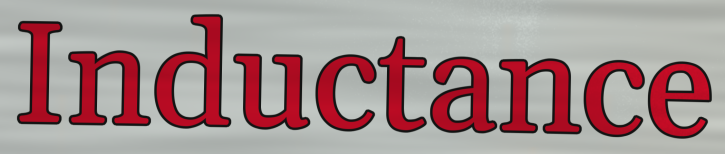
Inductance